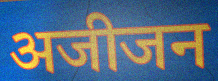
अजीजन